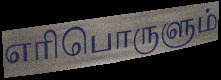
எரிபொருளும்